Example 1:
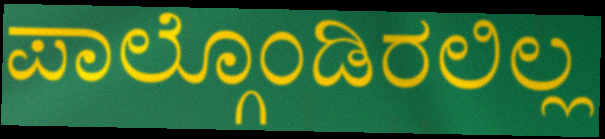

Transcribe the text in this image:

ಪಾಲ್ಗೊಂಡಿರಲಿಲ್ಲ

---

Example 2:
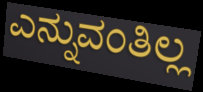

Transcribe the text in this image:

ಎನ್ನುವಂತಿಲ್ಲ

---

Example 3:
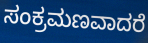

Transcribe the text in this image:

ಸಂಕ್ರಮಣವಾದರೆ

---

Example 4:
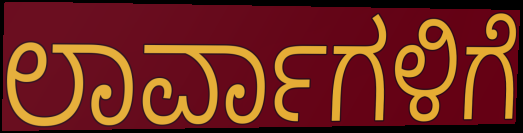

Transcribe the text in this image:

ಲಾರ್ವಾಗಳಿಗೆ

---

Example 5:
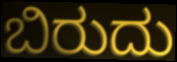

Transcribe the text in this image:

ಬಿರುದು